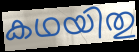
കഥയിതു